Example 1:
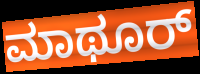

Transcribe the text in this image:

ಮಾಥೂರ್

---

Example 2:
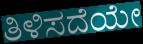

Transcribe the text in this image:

ತಿಳಿಸದೆಯೇ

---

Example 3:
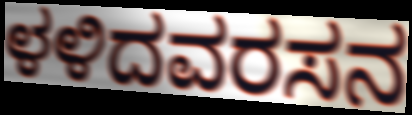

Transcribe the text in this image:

ಳಳಿದವರಸನ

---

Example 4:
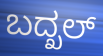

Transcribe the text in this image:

ಬದ್ಖಲ್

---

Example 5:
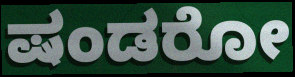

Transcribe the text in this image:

ಷಂಡರೋ